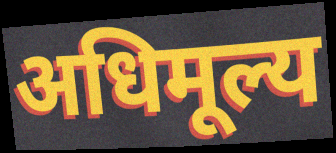
अधिमूल्य